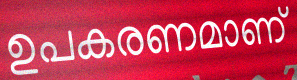
ഉപകരണമാണ്